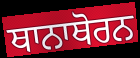
ਥਾਨਾਥੋਰਨ